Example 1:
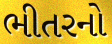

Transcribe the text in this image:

ભીતરનો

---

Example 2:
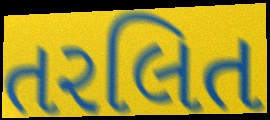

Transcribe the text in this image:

તરલિત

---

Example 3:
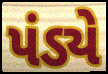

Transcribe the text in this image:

પંડ્યે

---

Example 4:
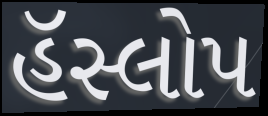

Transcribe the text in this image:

હૅસ્લોપ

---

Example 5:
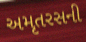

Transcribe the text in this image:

અમૃતરસની